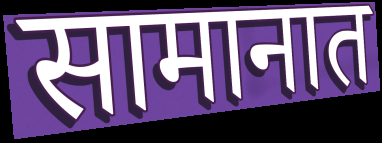
सामानात